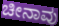
ಚೀನಾವು